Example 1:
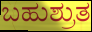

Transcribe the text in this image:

ಬಹುಶ್ರುತ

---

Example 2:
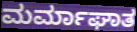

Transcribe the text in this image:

ಮರ್ಮಾಘಾತ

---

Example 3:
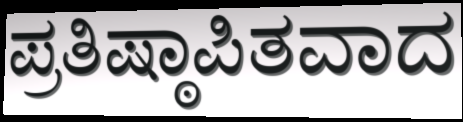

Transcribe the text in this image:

ಪ್ರತಿಷ್ಠಾಪಿತವಾದ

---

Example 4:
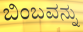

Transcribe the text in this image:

ಬಿಂಬವನ್ನು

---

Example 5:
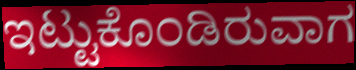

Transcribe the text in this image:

ಇಟ್ಟುಕೊಂಡಿರುವಾಗ